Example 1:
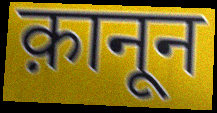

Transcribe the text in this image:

क़ानून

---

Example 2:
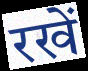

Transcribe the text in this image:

रखें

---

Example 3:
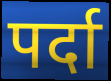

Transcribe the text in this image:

पर्दा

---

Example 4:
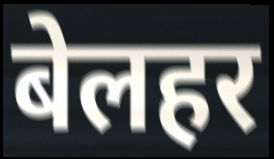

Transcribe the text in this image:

बेलहर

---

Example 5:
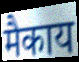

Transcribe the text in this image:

मैकाय